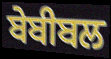
ਬੇਬੀਬਲ